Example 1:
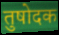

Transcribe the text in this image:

तुषोदक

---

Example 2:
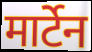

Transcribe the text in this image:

मार्टेन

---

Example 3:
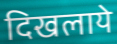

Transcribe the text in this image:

दिखलाये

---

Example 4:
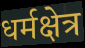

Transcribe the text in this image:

धर्मक्षेत्र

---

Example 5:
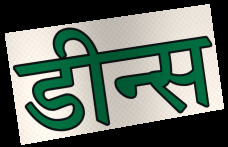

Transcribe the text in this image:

डीन्स